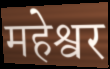
महेश्वर